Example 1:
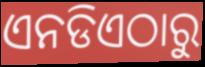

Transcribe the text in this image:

ଏନଡିଏଠାରୁ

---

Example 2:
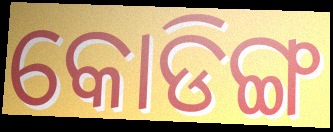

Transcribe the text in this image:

କୋଡିଙ୍ଗ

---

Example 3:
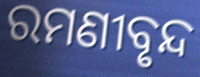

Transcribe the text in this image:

ରମଣୀବୃନ୍ଦ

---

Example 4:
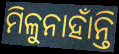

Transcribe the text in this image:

ମିଳୁନାହାଁନ୍ତି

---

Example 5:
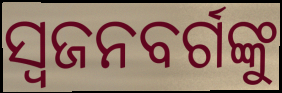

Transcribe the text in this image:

ସ୍ଵଜନବର୍ଗଙ୍କୁ